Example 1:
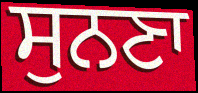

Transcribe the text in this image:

ਸੁਨਣਾ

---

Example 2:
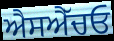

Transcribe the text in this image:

ਐਸਐੱਚਓ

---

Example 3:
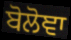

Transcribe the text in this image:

ਬੋਲੋਞਾ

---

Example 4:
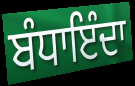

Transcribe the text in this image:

ਬੰਧਾਇੰਦਾ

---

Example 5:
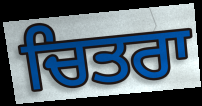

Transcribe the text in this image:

ਚਿਤਰਾ